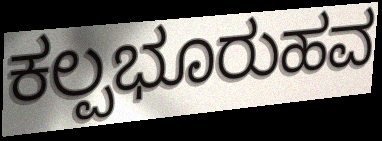
ಕಲ್ಪಭೂರುಹವ